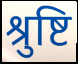
श्रुष्टि